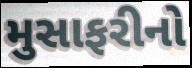
મુસાફરીનો